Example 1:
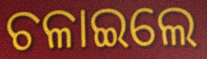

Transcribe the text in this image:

ଚଳାଇଲେ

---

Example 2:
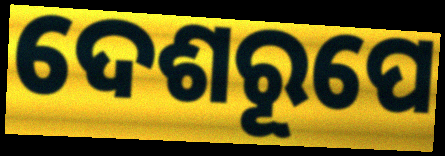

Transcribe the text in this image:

ଦେଶରୂପେ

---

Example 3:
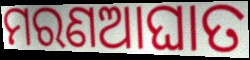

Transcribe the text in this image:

ମରଣଆଘାତ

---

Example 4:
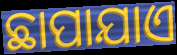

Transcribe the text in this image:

ଛାପାଯାଏ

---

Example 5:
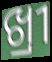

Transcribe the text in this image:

ଖ୍ରୀ